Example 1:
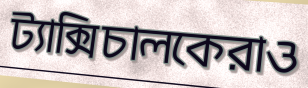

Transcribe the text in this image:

ট্যাক্সিচালকেরাও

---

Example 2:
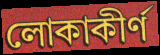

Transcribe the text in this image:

লোকাকীর্ণ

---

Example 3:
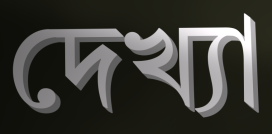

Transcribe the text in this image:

দেখ্যা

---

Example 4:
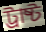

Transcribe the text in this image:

ট্রাষ্ট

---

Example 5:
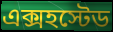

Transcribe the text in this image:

এক্সহস্টেড